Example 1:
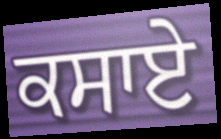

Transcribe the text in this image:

ਕਸਾਏ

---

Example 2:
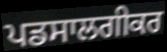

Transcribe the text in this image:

ਪਡਸਾਲਗੀਕਰ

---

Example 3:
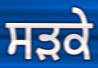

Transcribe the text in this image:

ਸਡ਼ਕੇ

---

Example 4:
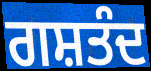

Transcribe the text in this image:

ਗਸ਼ਤੰਦ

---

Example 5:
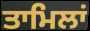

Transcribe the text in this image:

ਤਾਮਿਲਾਂ